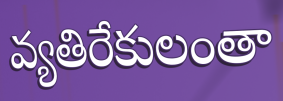
వ్యతిరేకులంతా